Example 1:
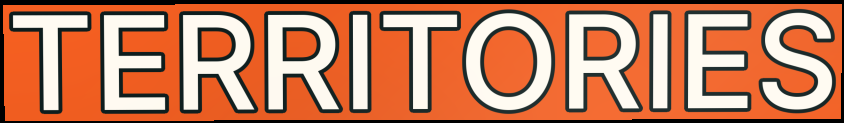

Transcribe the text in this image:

TERRITORIES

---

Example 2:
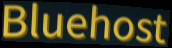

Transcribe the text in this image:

Bluehost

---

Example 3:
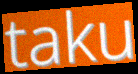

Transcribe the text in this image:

taku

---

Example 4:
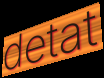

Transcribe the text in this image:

detat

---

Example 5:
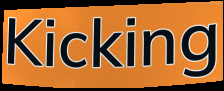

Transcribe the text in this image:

Kicking